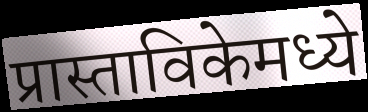
प्रास्ताविकेमध्ये